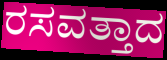
ರಸವತ್ತಾದ